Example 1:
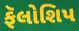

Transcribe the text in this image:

ફૅલોશિપ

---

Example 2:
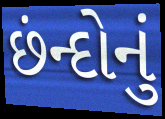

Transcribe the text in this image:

છંન્દોનું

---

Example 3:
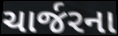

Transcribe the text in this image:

ચાર્જરના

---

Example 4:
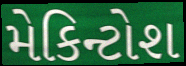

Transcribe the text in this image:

મેકિન્ટોશ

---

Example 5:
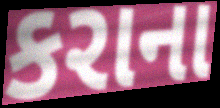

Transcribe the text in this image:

કરાના